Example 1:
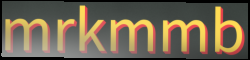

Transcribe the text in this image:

mrkmmb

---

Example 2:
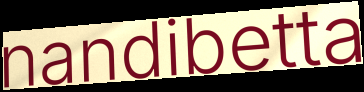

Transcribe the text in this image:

nandibetta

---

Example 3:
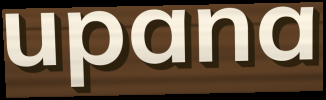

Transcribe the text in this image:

upana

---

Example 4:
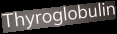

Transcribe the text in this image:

Thyroglobulin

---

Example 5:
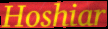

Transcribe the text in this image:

Hoshiar